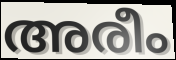
അരീം